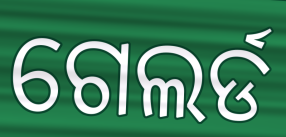
ଗେଲର୍ଡ